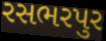
રસભરપુર